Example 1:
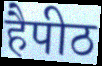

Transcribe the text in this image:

हैपीठ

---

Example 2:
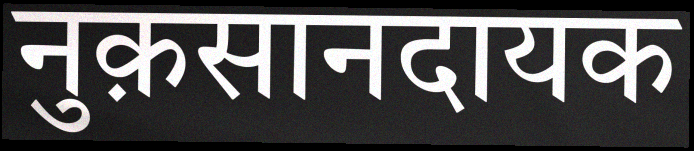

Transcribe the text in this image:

नुक़सानदायक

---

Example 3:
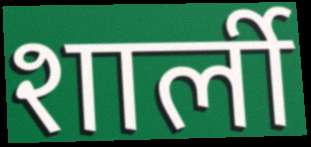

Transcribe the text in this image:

शार्ली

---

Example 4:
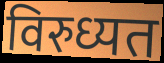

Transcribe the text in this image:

विरुध्यत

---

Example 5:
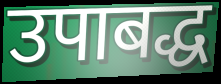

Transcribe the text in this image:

उपाबद्ध